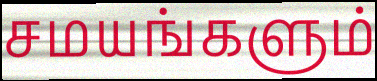
சமயங்களும்